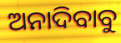
ଅନାଦିବାବୁ